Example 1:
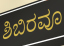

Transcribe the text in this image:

ಶಿಬಿರವೂ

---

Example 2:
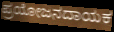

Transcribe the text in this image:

ಪ್ರಯೋಜನದಾಯಕ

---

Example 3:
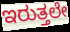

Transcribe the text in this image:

ಇರುತ್ತಲೇ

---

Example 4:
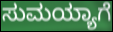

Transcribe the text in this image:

ಸುಮಯ್ಯಾಗೆ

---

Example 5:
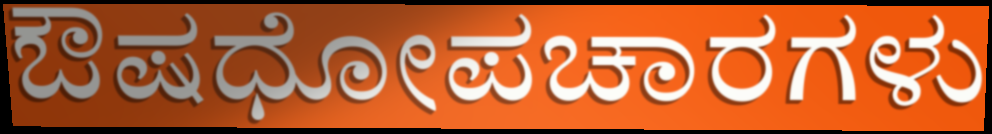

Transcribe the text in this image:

ಔಷಧೋಪಚಾರಗಳು